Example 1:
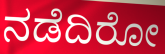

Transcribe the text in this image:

ನಡೆದಿರೋ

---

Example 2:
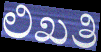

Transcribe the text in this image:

ಲಿಖತಿ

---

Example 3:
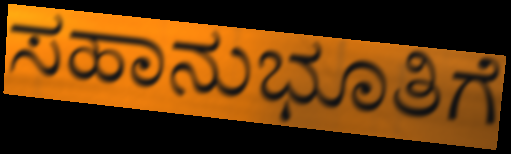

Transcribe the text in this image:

ಸಹಾನುಭೂತಿಗೆ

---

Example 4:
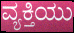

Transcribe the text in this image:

ವ್ಯಕ್ತಿಯು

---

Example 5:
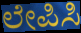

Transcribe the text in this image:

ಲೇಪಿಸಿ